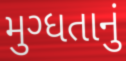
મુગ્ધતાનું